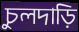
চুলদাড়ি